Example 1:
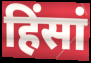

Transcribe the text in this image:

हिंसां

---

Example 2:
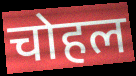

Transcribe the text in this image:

चोहल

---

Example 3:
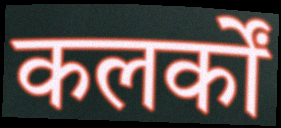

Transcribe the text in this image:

कलर्कों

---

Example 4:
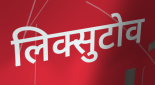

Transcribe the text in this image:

लिक्सुटोव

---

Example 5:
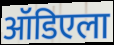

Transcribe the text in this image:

ऑडिएला